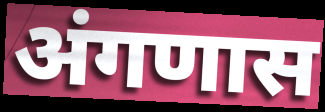
अंगणास